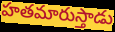
హతమారుస్తాడు